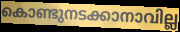
കൊണ്ടുനടക്കാനാവില്ല